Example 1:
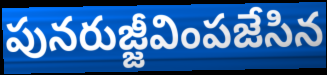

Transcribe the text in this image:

పునరుజ్జీవింపజేసిన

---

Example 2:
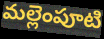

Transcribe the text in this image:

మల్లెంపూటి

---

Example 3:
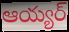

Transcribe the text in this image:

ఆయ్యర్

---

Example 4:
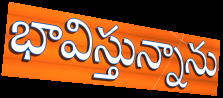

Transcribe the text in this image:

భావిస్తున్నాను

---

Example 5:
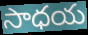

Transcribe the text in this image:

సాధయ